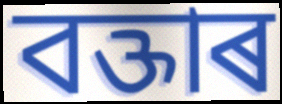
বক্তাৰ